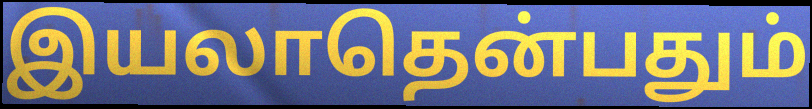
இயலாதென்பதும்